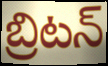
బ్రిటన్